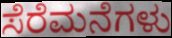
ಸೆರೆಮನೆಗಳು